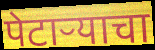
पेटाऱ्याचा